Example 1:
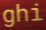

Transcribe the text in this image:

ghi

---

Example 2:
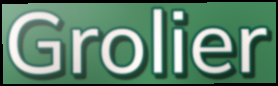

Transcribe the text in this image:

Grolier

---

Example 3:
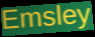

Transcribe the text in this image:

Emsley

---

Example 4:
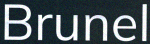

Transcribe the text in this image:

Brunel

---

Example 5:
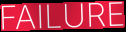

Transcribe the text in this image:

FAILURE